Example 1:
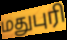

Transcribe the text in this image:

மதுபுரி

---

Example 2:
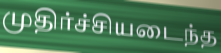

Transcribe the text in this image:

முதிர்ச்சியடைந்த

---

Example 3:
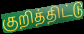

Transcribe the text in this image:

குறித்திட்டு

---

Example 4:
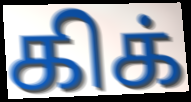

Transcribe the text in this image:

கிக்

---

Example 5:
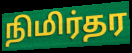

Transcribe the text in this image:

நிமிர்தர